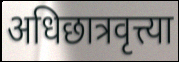
अधिछात्रवृत्त्या